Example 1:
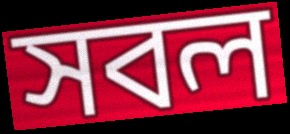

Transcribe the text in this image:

সবল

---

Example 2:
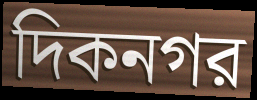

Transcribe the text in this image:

দিকনগর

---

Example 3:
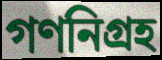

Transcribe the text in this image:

গণনিগ্রহ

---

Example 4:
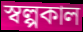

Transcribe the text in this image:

স্বল্পকাল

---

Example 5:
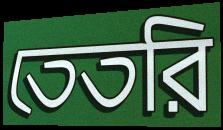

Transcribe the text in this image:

তেতরি